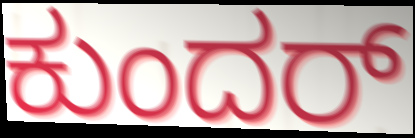
ಕುಂದರ್